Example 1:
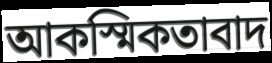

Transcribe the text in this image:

আকস্মিকতাবাদ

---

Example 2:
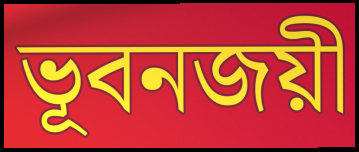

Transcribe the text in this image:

ভূবনজয়ী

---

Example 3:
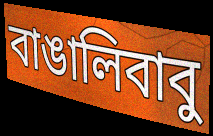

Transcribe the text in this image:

বাঙালিবাবু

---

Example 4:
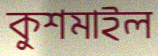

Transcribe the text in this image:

কুশমাইল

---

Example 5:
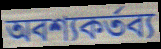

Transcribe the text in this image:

অবশ্যকর্তব্য